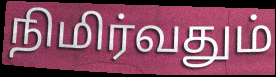
நிமிர்வதும்